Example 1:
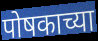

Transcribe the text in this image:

पोषकाच्या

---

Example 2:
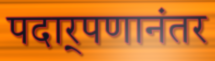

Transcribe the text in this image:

पदार्पणानंतर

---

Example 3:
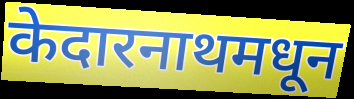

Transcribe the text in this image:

केदारनाथमधून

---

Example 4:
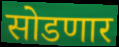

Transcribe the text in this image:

सोडणार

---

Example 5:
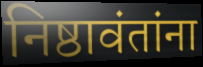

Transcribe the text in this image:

निष्ठावंतांना